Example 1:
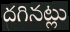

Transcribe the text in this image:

దగినట్లు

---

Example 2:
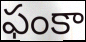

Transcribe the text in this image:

ఫంకా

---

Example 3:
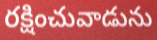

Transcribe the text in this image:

రక్షించువాడును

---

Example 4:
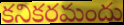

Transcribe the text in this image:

కనికరమందు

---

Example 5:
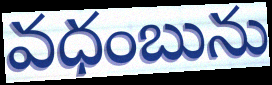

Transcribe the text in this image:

వధంబును